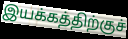
இயக்கத்திற்குச்